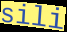
sili